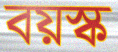
বয়স্ক